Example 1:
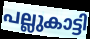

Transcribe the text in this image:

പല്ലുകാട്ടി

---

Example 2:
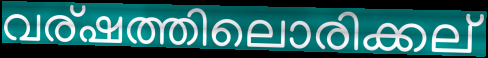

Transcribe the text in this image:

വര്ഷത്തിലൊരിക്കല്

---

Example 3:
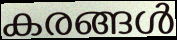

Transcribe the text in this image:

കരങ്ങൾ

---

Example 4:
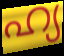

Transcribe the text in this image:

ഹ്യ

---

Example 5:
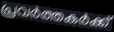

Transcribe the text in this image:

പ്രവർത്തകർക്ക്